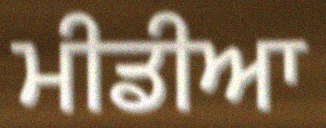
ਮੀਡੀਆ